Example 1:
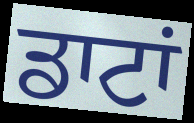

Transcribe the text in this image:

ਡਾਟਾਂ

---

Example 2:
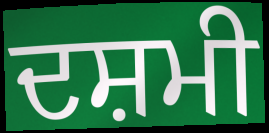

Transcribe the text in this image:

ਦਸ਼ਮੀ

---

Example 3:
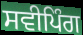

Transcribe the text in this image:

ਸਵੀਪਿੰਗ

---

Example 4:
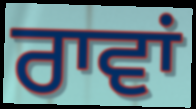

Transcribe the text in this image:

ਰਾਵਾਂ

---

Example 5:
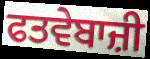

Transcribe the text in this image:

ਫਤਵੇਬਾਜ਼ੀ